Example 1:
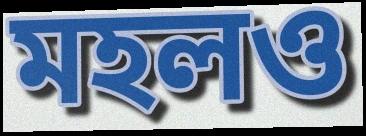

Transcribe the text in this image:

মহলও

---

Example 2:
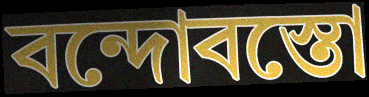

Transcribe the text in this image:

বন্দোবস্তো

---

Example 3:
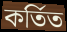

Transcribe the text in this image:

কর্তিত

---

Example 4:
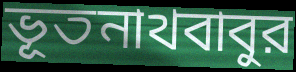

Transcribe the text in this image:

ভূতনাথবাবুর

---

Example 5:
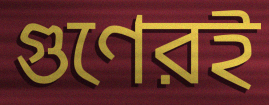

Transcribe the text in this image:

গুণেরই